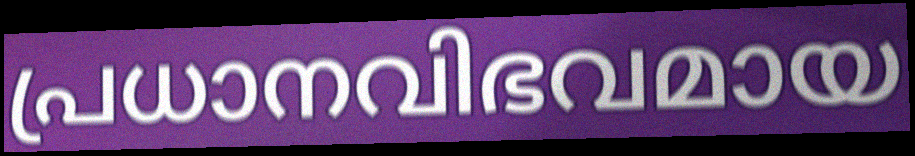
പ്രധാനവിഭവമായ